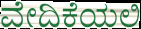
ವೇದಿಕೆಯಲಿ